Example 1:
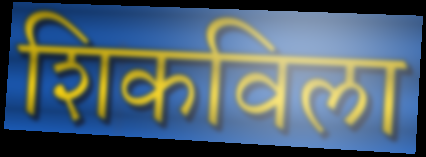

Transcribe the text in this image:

शिकविला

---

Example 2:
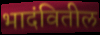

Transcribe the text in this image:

भादंवितील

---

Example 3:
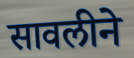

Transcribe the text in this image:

सावलीने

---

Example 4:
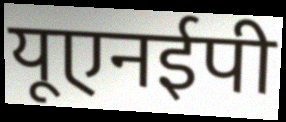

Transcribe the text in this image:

यूएनईपी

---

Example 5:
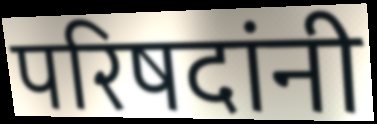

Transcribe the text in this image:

परिषदांनी